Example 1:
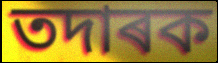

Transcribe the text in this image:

তদাৰক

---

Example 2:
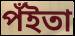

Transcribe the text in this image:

পঁইতা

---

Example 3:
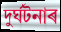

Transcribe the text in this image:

দুৰ্ঘটনাৰ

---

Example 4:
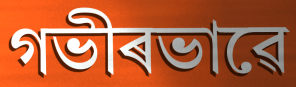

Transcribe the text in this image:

গভীৰভাৱে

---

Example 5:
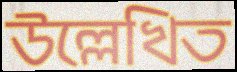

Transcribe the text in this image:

উল্লেখিত